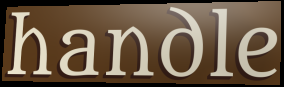
handle